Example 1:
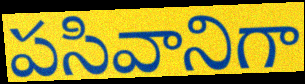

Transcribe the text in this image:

పసివానిగా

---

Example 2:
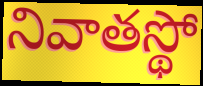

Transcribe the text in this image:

నివాతస్థో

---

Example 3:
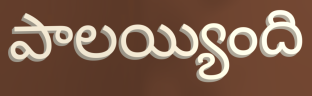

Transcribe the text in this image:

పాలయ్యింది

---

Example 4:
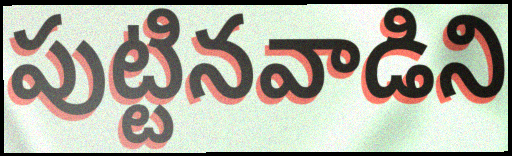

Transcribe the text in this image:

పుట్టినవాడిని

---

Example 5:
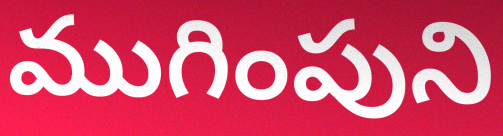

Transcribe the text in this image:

ముగింపుని